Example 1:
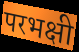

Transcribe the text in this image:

परभक्षी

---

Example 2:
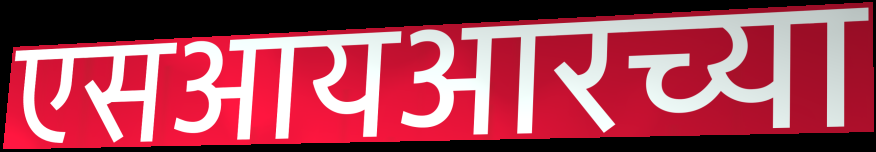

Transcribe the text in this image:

एसआयआरच्या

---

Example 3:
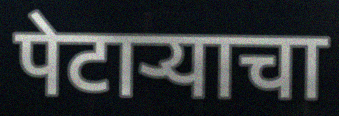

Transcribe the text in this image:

पेटाऱ्याचा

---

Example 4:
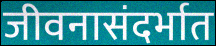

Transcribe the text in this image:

जीवनासंदर्भात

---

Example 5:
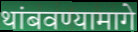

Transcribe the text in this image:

थांबवण्यामागे